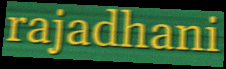
rajadhani